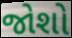
જોશો